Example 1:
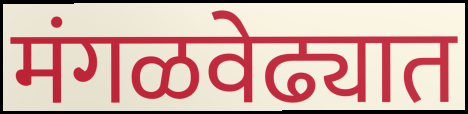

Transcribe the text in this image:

मंगळवेढ्यात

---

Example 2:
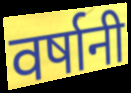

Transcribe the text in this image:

वर्षानी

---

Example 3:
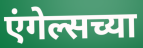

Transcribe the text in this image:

एंगेल्सच्या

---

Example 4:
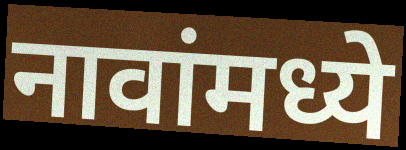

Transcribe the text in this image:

नावांमध्ये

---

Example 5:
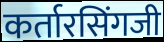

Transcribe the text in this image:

कर्तारसिंगजी